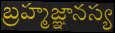
బ్రహ్మజ్ఞానస్య